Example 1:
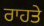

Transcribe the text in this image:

ਰਾਹਤੇ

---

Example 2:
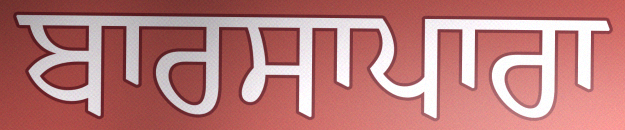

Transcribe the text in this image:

ਬਾਰਸਾਪਾਰਾ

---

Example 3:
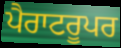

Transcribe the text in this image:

ਪੈਰਾਟਰੂਪਰ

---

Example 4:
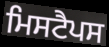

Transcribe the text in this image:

ਮਿਸਟੈਪਸ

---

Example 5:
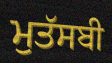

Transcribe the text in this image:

ਮੁਤੱਸਬੀ